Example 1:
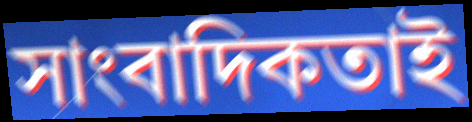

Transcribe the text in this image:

সাংবাদিকতাই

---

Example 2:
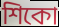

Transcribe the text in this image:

শিকো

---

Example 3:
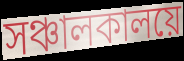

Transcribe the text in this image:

সঞ্চালকালয়ে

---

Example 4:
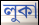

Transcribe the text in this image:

লুকা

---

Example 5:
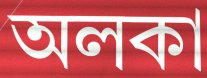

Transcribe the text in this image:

অলকা